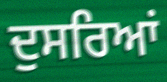
ਦੁਸਰਿਆਂ